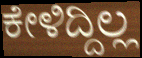
ಕೇಳಿದ್ದಿಲ್ಲ